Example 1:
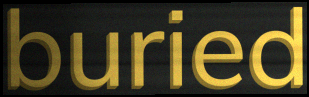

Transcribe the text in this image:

buried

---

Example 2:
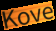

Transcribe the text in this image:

Kove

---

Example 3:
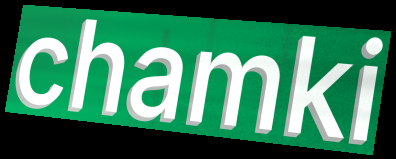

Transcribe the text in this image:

chamki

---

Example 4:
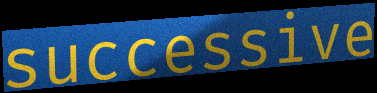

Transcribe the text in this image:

successive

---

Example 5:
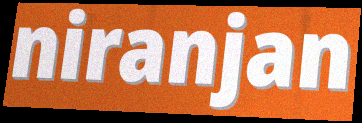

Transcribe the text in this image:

niranjan